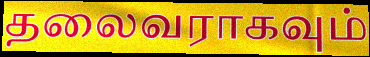
தலைவராகவும்